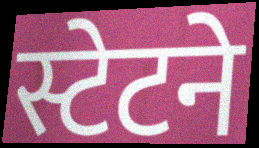
स्टेटने